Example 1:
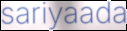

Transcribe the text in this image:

sariyaada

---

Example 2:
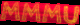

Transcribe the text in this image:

MMMU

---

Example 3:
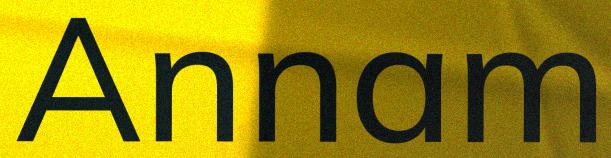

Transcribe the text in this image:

Annam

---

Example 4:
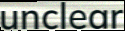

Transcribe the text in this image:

unclear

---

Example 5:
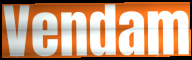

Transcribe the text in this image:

Vendam